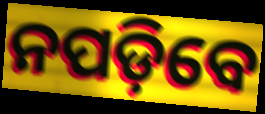
ନପଡ଼ିବେ